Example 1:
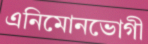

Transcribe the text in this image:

এনিমোনভোগী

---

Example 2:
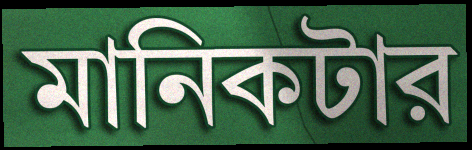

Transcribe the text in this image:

মানিকটার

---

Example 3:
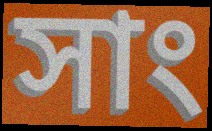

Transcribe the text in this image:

সাং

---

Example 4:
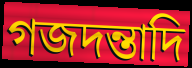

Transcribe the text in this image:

গজদন্তাদি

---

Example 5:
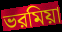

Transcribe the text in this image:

ভরমিয়া